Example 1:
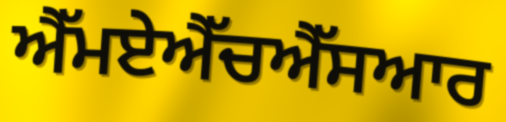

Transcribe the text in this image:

ਐੱਮਏਐੱਚਐੱਸਆਰ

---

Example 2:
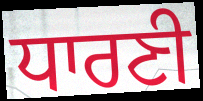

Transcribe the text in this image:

ਧਾਰਣੀ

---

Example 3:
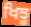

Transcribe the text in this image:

ਖਿਝੂ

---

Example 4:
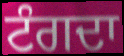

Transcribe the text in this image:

ਟੰਗਦਾ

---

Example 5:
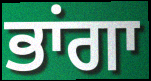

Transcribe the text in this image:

ਭਾਂਗਾ